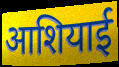
आशियाई